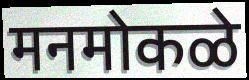
मनमोकळे